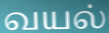
வயல்